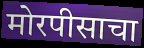
मोरपीसाचा